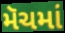
મૅચમાં